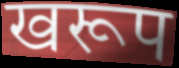
खरूप